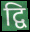
द्वि